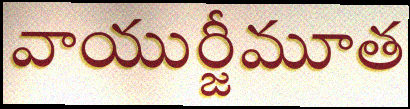
వాయుర్జీమూత